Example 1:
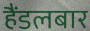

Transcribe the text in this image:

हैंडलबार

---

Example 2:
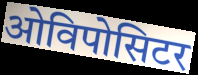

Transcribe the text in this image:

ओविपोसिटर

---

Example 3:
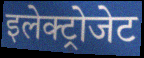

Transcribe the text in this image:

इलेक्ट्रोजेट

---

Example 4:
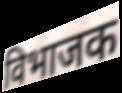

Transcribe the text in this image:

विभाजक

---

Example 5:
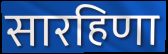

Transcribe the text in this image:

सारहिणा